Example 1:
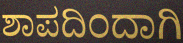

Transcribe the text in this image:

ಶಾಪದಿಂದಾಗಿ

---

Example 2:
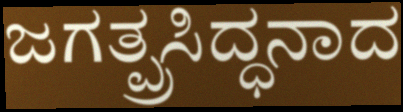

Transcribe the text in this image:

ಜಗತ್ಪ್ರಸಿದ್ಧನಾದ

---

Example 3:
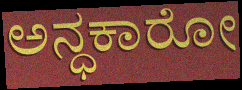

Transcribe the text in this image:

ಅನ್ಧಕಾರೋ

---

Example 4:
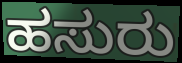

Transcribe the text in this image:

ಹಸುರು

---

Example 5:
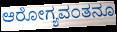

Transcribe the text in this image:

ಆರೋಗ್ಯವಂತನೂ